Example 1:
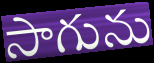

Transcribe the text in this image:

సాగును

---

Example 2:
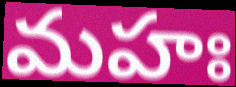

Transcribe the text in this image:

మహః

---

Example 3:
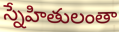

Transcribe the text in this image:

స్నేహితులంతా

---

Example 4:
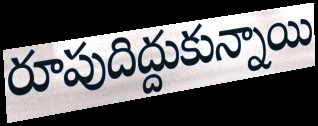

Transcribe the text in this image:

రూపుదిద్దుకున్నాయి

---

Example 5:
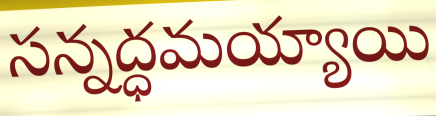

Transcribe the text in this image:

సన్నద్ధమయ్యాయి